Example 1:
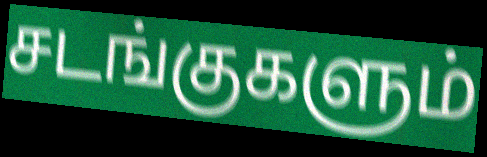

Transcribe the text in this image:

சடங்குகளும்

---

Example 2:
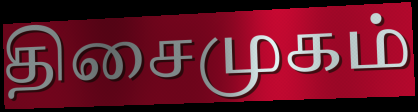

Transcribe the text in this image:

திசைமுகம்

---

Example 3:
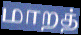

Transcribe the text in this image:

மாறத்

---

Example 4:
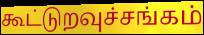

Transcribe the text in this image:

கூட்டுறவுச்சங்கம்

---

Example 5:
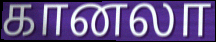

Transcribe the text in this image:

கானலா